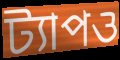
ট্যাপও